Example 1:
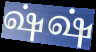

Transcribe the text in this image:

ஷ்ஷ்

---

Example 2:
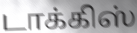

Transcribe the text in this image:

டாக்கிஸ்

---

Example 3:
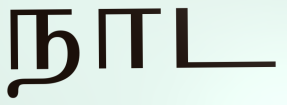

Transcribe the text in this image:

நாட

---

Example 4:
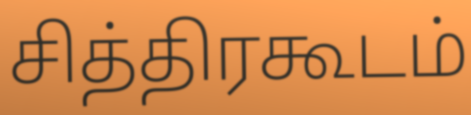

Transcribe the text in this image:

சித்திரகூடம்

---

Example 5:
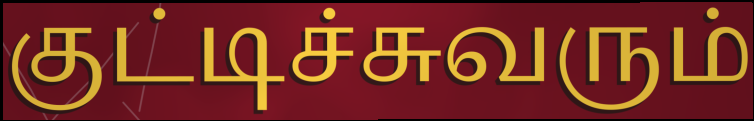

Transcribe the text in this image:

குட்டிச்சுவரும்